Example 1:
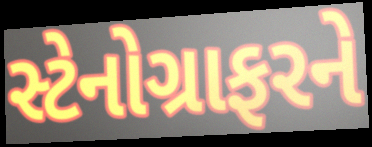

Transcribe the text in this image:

સ્ટેનોગ્રાફરને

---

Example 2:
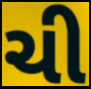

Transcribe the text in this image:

ચી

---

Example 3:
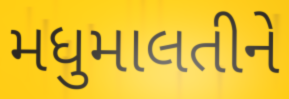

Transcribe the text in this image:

મધુમાલતીને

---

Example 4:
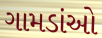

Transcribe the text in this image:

ગામડાંઓ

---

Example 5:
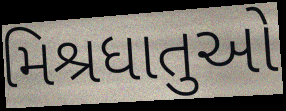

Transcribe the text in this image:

મિશ્રધાતુઓ